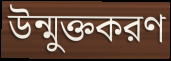
উন্মুক্তকরণ